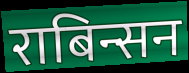
राबिन्सन